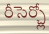
రీసెర్చ్లో